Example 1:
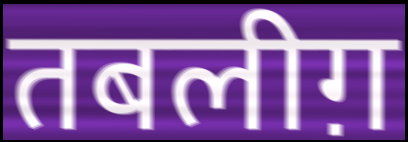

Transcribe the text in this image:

तबलीग़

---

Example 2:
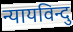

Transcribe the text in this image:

न्यायविन्दु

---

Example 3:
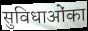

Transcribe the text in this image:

सुविधाओंका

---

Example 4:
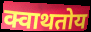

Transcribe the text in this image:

क्वाथतोय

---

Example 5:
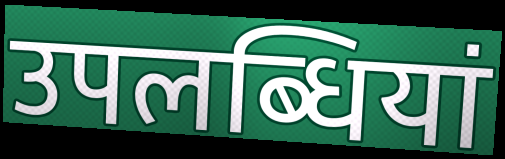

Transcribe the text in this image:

उपलब्धियां